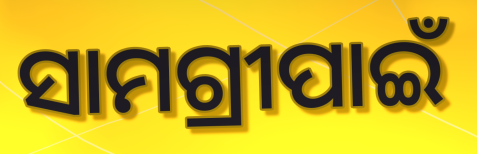
ସାମଗ୍ରୀପାଇଁ